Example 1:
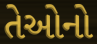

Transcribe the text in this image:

તેઓનો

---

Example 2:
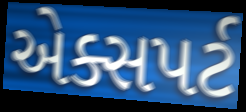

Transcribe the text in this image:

એક્સપર્ટ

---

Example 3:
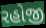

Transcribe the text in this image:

રહોજી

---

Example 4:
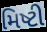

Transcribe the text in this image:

મિષ્ટી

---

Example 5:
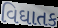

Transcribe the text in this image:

વિઘાતક